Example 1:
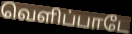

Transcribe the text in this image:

வெளிப்பாடே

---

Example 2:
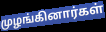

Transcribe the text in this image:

முழங்கினார்கள்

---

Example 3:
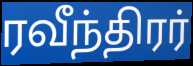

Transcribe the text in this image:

ரவீந்திரர்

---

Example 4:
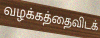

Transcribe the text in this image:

வழக்கத்தைவிடக்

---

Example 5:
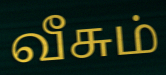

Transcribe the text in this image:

வீசும்